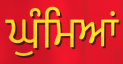
ਘੁੰਮਿਆਂ